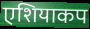
एशियाकप